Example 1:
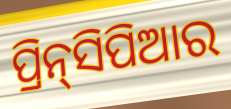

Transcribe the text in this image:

ପ୍ରିନ୍‌ସିପିଆର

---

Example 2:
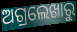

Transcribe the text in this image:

ଅଗ୍ରଲେଖାରୁ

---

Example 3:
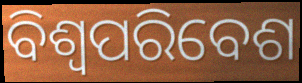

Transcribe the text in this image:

ବିଶ୍ୱପରିବେଶ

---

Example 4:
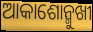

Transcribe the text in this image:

ଆକାଶୋନ୍ମୁଖୀ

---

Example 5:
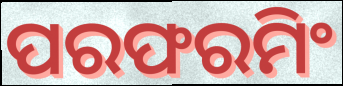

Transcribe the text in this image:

ପରଫରମିଂ